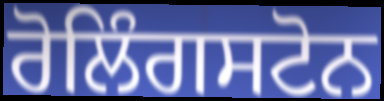
ਰੋਲਿੰਗਸਟੋਨ